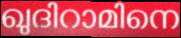
ഖുദിറാമിനെ